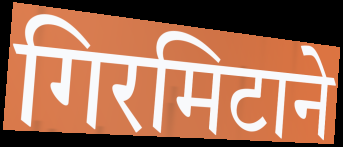
गिरमिटाने